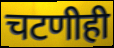
चटणीही